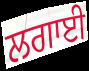
ਲਗਾਈ